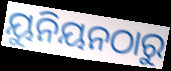
ୟୁନିୟନଠାରୁ